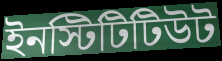
ইনস্টিটিটিউট